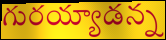
గురయ్యాడన్న